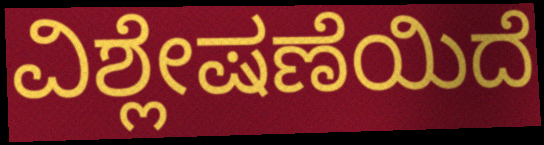
ವಿಶ್ಲೇಷಣೆಯಿದೆ